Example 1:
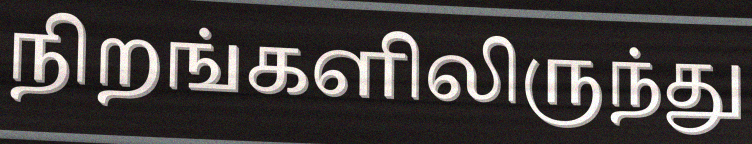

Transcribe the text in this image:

நிறங்களிலிருந்து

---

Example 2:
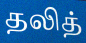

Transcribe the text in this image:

தலித்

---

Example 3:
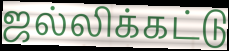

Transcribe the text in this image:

ஜல்லிக்கட்டு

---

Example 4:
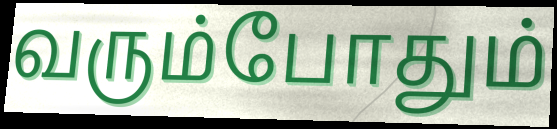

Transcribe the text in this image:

வரும்போதும்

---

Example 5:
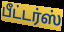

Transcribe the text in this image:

பீட்டர்ஸ்